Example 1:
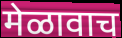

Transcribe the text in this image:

मेळावाच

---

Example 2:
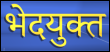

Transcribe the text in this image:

भेदयुक्त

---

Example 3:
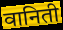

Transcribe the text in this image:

वानिती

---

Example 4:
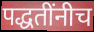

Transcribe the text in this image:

पद्धतींनीच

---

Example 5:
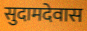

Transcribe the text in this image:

सुदामदेवास